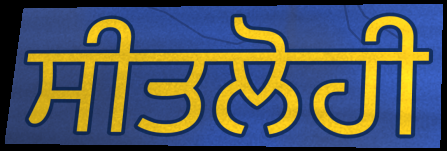
ਸੀਤਲੋਹੀ